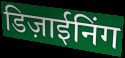
डिज़ाईनिंग